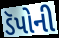
ડૅપોની